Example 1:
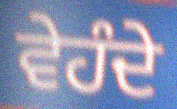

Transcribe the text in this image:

ਵੇਹੰਦੇ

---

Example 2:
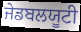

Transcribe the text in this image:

ਜੇਡਬਲਯੂਟੀ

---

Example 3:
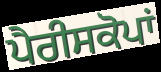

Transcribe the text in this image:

ਪੈਰੀਸਕੋਪਾਂ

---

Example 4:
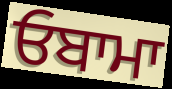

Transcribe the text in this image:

ਓਬਾਮਾ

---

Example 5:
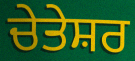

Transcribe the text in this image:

ਚੇਤੇਸ਼ਰ